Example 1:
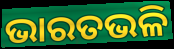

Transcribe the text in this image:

ଭାରତଭଳି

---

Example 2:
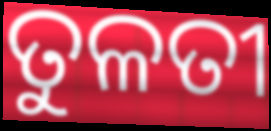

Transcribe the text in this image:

ତୁଳତୀ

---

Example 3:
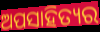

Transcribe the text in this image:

ଅପସାହିତ୍ୟର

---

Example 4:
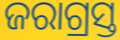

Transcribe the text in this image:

ଜରାଗ୍ରସ୍ତ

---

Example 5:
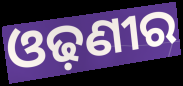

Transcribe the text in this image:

ଓଢ଼ଣୀର